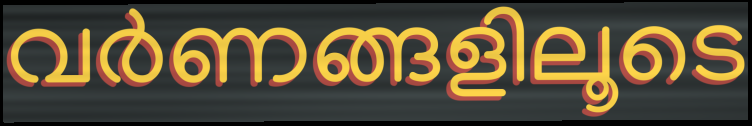
വർണങ്ങളിലൂടെ